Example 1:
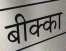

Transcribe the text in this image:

बीक्का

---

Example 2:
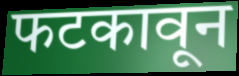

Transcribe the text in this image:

फटकावून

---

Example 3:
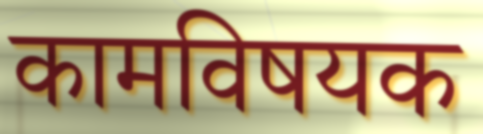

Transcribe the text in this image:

कामविषयक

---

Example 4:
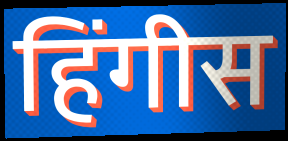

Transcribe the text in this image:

हिंगीस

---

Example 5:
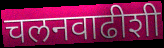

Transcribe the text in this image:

चलनवाढीशी